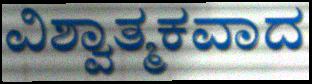
ವಿಶ್ವಾತ್ಮಕವಾದ